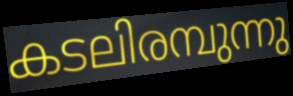
കടലിരമ്പുന്നു